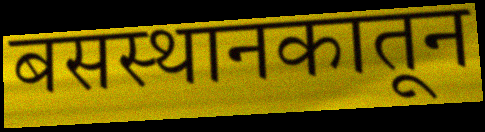
बसस्थानकातून